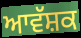
ਆਵੱਸ਼ਕ